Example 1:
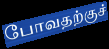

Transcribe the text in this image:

போவதற்குச்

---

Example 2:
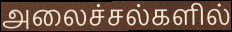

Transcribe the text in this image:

அலைச்சல்களில்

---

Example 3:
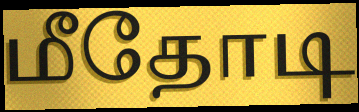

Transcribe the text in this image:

மீதோடி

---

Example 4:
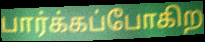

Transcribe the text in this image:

பார்க்கப்போகிற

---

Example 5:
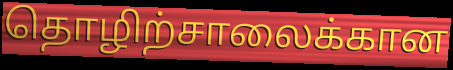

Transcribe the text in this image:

தொழிற்சாலைக்கான